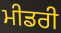
ਮੀਡਰੀ